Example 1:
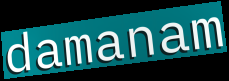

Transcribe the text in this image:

damanam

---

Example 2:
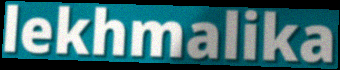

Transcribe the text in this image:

lekhmalika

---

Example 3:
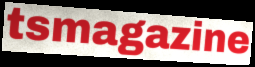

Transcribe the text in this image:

tsmagazine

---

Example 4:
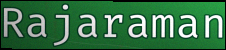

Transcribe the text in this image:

Rajaraman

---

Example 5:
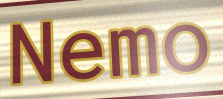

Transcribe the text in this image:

Nemo